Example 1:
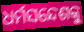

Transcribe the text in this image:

ଧର୍ମସନ୍ଦେଶକୁ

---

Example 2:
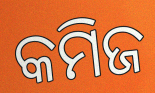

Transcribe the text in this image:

କମିଜ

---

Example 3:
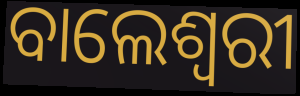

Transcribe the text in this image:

ବାଲେଶ୍ୱରୀ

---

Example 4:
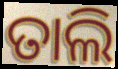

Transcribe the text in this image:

ତାଲି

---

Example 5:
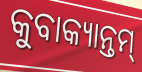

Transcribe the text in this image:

କୁବାକ୍ୟାନ୍ତମ୍